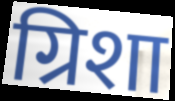
ग्रिशा